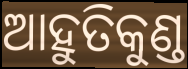
ଆହୁତିକୁଣ୍ଡ